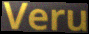
Veru